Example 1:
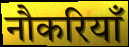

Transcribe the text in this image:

नौकरियाँ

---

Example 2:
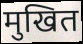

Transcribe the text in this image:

मुखित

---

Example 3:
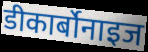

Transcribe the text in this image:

डीकार्बोनाइज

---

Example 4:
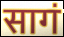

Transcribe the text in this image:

सागं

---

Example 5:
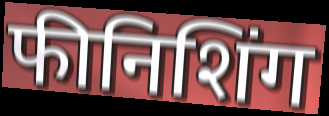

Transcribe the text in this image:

फीनिशिंग